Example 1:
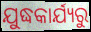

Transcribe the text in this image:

ଯୁଦ୍ଧକାର୍ଯ୍ୟରୁ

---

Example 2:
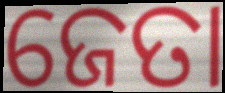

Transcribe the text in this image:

ଜେତା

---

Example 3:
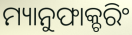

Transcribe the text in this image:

ମ୍ୟାନୁଫାକ୍ଚରିଂ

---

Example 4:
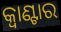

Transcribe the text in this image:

କ୍ୱାଣ୍ଟାର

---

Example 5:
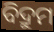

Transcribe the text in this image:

ବିଦ୍ରୁମ